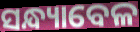
ସନ୍ଧ୍ୟାବେଳ